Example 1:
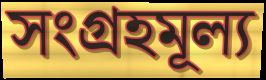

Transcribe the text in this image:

সংগ্রহমূল্য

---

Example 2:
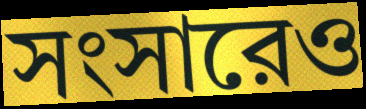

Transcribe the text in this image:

সংসারেও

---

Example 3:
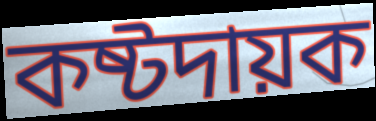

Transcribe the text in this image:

কষ্টদায়ক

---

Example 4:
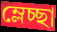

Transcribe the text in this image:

ম্লেচ্ছা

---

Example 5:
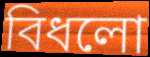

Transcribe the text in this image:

বিধলো